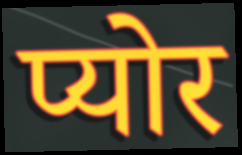
प्योर